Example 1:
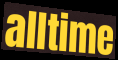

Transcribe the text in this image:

alltime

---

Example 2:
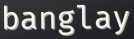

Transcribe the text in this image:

banglay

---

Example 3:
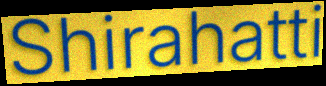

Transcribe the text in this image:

Shirahatti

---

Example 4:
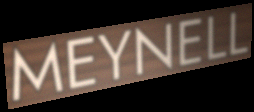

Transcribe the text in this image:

MEYNELL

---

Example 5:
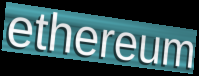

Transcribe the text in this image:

ethereum